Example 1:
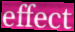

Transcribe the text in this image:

effect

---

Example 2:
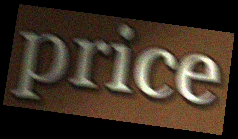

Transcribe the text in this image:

price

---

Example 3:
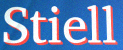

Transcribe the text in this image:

Stiell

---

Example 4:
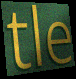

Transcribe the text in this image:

tle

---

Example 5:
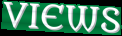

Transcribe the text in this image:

VIEWS